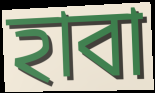
হাবা